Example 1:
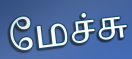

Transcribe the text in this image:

மேச்சு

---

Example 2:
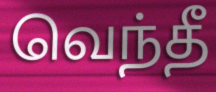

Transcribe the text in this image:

வெந்தீ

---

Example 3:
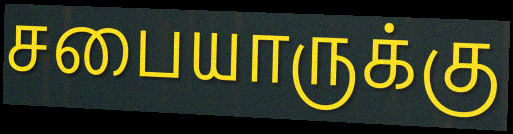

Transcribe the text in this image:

சபையாருக்கு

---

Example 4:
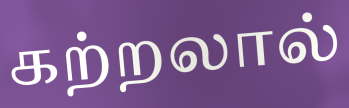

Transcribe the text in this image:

கற்றலால்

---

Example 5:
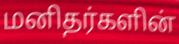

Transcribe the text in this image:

மனிதர்களின்